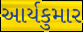
આર્યકુમાર